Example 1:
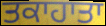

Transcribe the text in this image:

ਤਕਾਹਾਤਾ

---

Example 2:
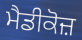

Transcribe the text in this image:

ਮੈਡੀਕੋਜ਼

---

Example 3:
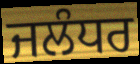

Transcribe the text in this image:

ਜਲੰਧਰ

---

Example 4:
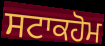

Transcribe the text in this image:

ਸਟਾਕਹੋਮ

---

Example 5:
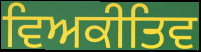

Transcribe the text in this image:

ਵਿਅਕੀਤਿਵ